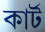
কাৰ্ট